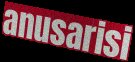
anusarisi